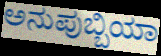
ಅನುಪುಬ್ಬಿಯಾ